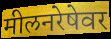
मीलनरेषेवर